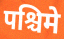
पश्चिमे